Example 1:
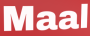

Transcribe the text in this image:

Maal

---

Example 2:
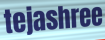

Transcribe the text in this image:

tejashree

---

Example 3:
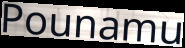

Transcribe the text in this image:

Pounamu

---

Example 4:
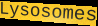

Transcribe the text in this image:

Lysosomes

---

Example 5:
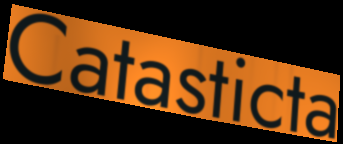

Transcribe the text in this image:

Catasticta